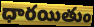
ధారయితుం